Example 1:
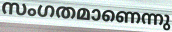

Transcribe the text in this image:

സംഗതമാണെന്നു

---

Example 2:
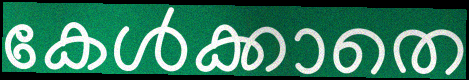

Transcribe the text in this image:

കേൾക്കാതെ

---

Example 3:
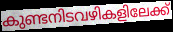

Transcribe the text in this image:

കുണ്ടനിടവഴികളിലേക്ക്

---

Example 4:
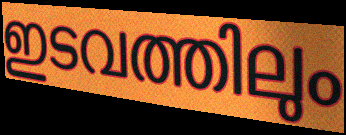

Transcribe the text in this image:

ഇടവത്തിലും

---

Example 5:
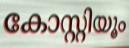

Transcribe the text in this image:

കോസ്റ്റിയൂം